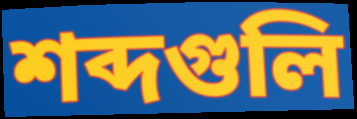
শব্দগুলি